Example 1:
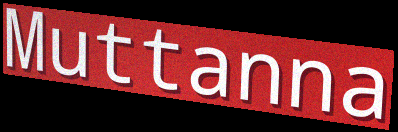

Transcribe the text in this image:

Muttanna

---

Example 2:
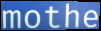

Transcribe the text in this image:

mothe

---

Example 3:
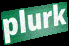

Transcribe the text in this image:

plurk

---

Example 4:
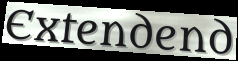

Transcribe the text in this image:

Extendend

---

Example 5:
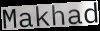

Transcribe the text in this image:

Makhad